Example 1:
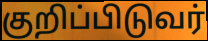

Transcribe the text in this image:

குறிப்பிடுவர்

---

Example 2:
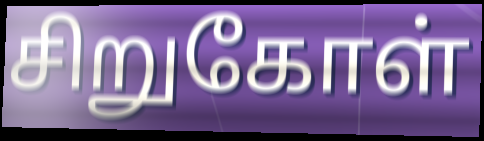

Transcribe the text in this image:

சிறுகோள்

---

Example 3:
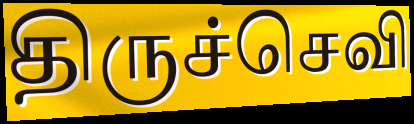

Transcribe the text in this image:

திருச்செவி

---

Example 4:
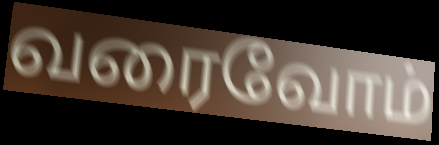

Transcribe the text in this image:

வரைவோம்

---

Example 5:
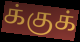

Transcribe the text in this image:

க்குக்